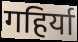
गहिर्या